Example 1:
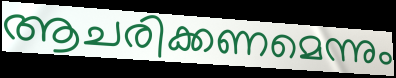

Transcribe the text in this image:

ആചരിക്കണമെന്നും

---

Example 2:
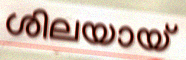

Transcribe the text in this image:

ശിലയായ്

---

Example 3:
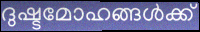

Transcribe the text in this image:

ദുഷ്ടമോഹങ്ങൾക്ക്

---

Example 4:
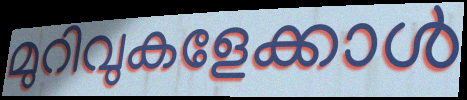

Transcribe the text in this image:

മുറിവുകളേക്കാൾ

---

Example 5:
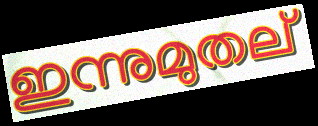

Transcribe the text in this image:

ഇന്നുമുതല്